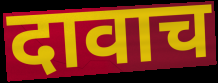
दावाच